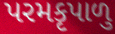
પરમકૃપાળુ